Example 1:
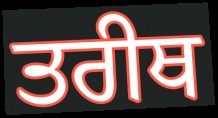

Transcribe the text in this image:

ਤਰੀਥ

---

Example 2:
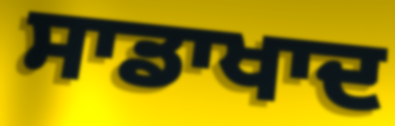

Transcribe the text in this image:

ਸਾਡਾਖਾਦ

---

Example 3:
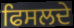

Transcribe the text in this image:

ਫਿਸਲਦੇ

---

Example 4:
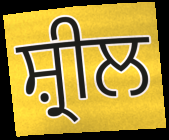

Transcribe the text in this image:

ਸ਼੍ਰੀਲ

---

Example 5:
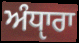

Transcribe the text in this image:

ਅੰਧੵਾਰਾ